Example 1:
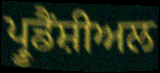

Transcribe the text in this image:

ਪ੍ਰੂਡੈਂਸ਼ੀਅਲ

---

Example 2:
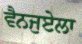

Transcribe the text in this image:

ਵੈਨਜੁਏਲਾ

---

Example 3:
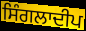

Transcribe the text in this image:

ਸਿੰਗਲਾਦੀਪ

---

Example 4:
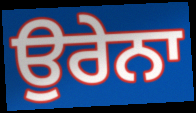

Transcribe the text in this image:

ਉਰੇਨਾ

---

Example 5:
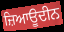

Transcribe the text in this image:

ਜ਼ਿਆਊਦੀਨ